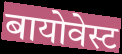
बायोवेस्ट